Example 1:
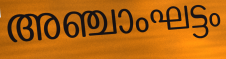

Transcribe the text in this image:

അഞ്ചാംഘട്ടം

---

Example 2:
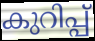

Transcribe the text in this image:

കുറിപ്പ്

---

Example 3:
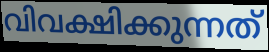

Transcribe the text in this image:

വിവക്ഷിക്കുന്നത്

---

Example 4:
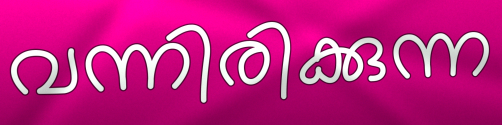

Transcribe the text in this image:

വന്നിരിക്കുന്ന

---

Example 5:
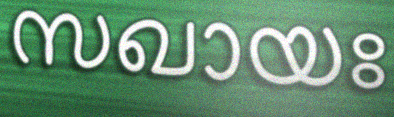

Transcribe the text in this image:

സഖായഃ